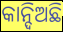
କାନ୍ଦିଅଛି